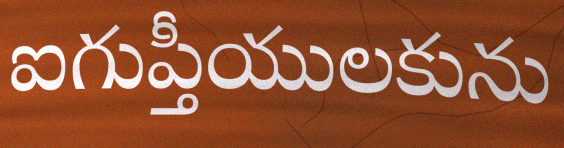
ఐగుప్తీయులకును